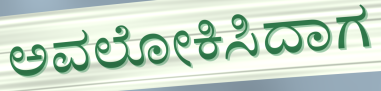
ಅವಲೋಕಿಸಿದಾಗ